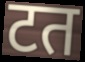
टत